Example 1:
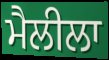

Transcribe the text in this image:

ਮੈਲੀਲਾ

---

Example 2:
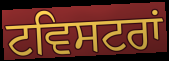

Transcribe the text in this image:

ਟਵਿਸਟਰਾਂ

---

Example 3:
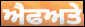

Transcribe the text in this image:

ਐਫਅਤੇ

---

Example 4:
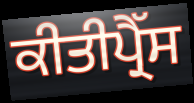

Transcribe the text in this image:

ਕੀਤੀਪ੍ਰੈੱਸ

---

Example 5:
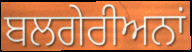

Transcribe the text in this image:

ਬਲਗੇਰੀਅਨਾਂ